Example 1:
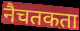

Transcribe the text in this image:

नैचतकता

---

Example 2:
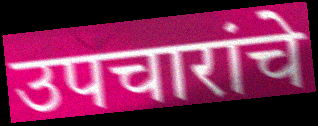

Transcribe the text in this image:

उपचारांचे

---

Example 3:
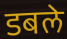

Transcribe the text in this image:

डबले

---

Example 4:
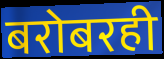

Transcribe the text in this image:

बरोबरही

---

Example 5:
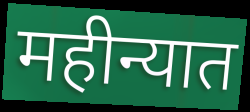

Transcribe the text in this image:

महीन्यात